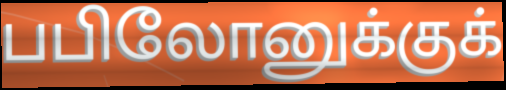
பபிலோனுக்குக்